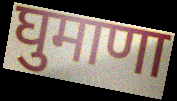
घुमाणा